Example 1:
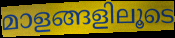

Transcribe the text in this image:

മാളങ്ങളിലൂടെ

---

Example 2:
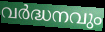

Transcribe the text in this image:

വർദ്ധനവും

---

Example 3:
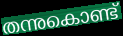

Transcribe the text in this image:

തന്നുകൊണ്ട്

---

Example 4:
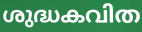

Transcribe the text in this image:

ശുദ്ധകവിത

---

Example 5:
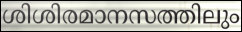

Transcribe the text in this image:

ശിശിരമാനസത്തിലും